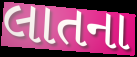
લાતના